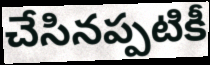
చేసినప్పటికీ